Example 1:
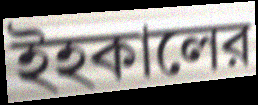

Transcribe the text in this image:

ইহকালের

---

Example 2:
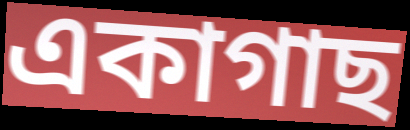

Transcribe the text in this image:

একাগাছ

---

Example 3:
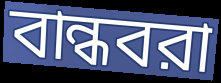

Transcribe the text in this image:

বান্ধবরা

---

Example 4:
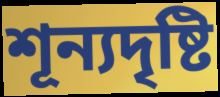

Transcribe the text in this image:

শূন্যদৃষ্টি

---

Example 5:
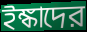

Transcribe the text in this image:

ইঙ্কাদের